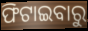
ଫିଟାଇବାରୁ